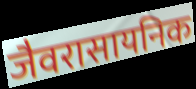
जैवरासायनिक